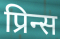
प्रिन्स